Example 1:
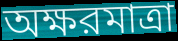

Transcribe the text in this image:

অক্ষরমাত্রা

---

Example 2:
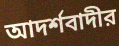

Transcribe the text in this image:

আদর্শবাদীর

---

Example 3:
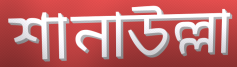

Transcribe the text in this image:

শানাউল্লা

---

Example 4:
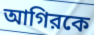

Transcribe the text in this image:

আগিরকে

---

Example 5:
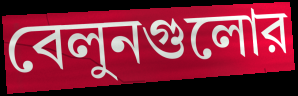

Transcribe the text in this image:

বেলুনগুলোর